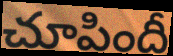
చూపిందీ